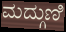
ಮದ್ಗುಣಿ